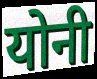
योनी